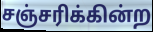
சஞ்சரிக்கின்ற